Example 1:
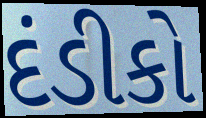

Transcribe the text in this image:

દંડીકો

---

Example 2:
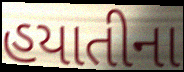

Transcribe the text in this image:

હયાતીના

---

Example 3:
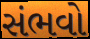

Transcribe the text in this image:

સંભવો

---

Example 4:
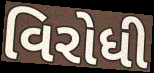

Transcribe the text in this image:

વિરોધી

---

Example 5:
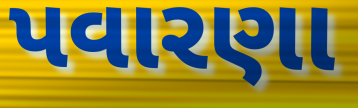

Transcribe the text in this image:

પવારણા